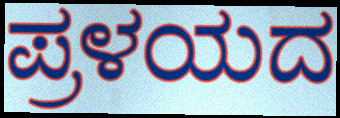
ಪ್ರಳಯದ